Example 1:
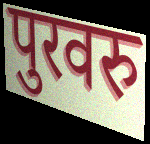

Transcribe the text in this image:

पुरवरु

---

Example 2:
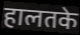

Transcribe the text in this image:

हालतके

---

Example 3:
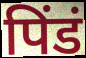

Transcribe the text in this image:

पिंडं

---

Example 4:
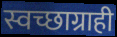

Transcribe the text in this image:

स्वच्छाग्राही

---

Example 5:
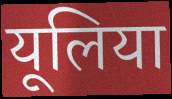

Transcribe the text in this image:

यूलिया